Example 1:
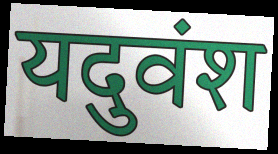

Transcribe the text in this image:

यदुवंश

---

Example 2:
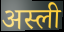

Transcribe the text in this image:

अस्ली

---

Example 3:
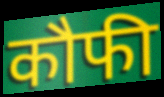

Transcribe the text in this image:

कौफी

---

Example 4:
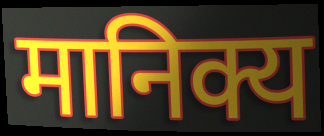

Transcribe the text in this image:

मानिक्य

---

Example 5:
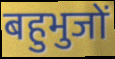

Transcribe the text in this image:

बहुभुजों